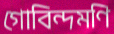
গোবিন্দমণি